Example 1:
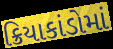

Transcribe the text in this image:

ક્રિયાકાંડોમાં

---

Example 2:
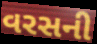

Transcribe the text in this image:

વરસની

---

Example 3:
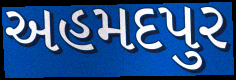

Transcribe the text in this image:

અહમદપુર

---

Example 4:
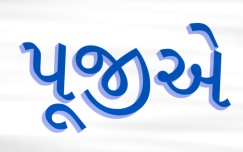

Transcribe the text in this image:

પૂજીએ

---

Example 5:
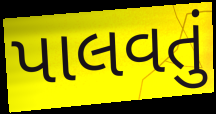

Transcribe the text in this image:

પાલવતું